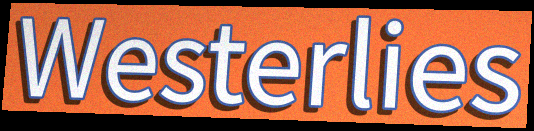
Westerlies